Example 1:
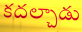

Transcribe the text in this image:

కదల్చాడు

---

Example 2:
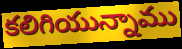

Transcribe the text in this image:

కలిగియున్నాము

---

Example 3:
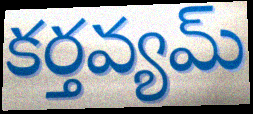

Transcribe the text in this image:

కర్తవ్యమ్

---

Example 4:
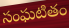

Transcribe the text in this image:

సంఘటితం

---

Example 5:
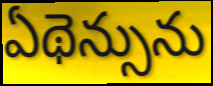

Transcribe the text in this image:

ఏథెన్సును